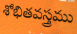
శోభితవస్త్రము